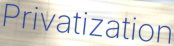
Privatization